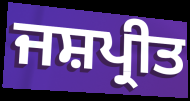
ਜਸ਼ਪ੍ਰੀਤ